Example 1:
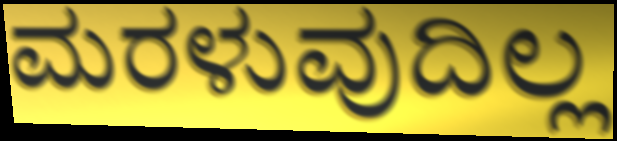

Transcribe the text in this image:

ಮರಳುವುದಿಲ್ಲ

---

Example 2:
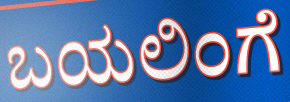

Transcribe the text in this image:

ಬಯಲಿಂಗೆ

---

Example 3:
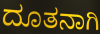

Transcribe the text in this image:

ದೂತನಾಗಿ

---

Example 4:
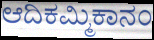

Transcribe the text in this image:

ಆದಿಕಮ್ಮಿಕಾನಂ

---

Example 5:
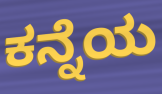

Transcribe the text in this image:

ಕನ್ನೆಯ